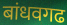
बांधवगढ